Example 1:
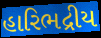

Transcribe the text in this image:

હારિભદ્રીય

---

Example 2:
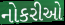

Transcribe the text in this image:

નોકરીઓ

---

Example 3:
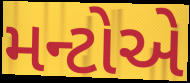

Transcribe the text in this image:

મન્ટોએ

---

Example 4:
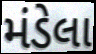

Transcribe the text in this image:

મંડેલા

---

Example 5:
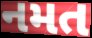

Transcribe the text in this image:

નમત